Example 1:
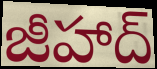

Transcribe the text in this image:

జీహాద్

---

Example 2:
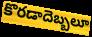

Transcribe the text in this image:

కొరడాదెబ్బలూ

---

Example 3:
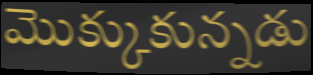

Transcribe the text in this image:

మొక్కుకున్నడు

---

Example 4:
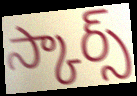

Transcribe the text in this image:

స్కార్స్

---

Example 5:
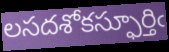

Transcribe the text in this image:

లసదశోకస్ఫూర్తిఁ